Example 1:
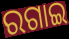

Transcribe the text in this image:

ରଗାଇ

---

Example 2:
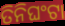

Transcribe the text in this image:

ତିନିଘଂଟା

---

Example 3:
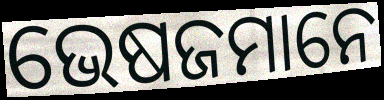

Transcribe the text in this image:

ଭେଷଜମାନେ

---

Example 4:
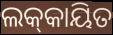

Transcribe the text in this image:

ଲକ୍‌କାୟିତ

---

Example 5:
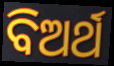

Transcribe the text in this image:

ବିଅର୍ଥ